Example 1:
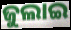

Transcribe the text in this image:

ଜୁଲାଇ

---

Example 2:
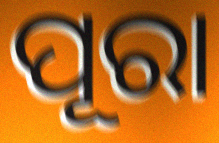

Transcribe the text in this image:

ପୂରା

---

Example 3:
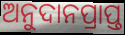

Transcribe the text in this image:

ଅନୁଦାନପ୍ରାପ୍ତ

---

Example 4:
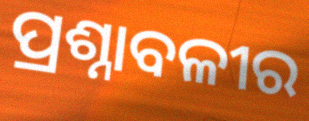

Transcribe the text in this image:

ପ୍ରଶ୍ନାବଳୀର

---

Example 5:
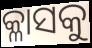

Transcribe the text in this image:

କ୍ଳାସକୁ